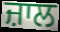
ਜ਼ਾਲ